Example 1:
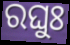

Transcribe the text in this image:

ରଘୁଃ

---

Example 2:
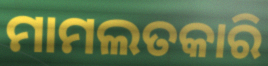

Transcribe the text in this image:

ମାମଲତକାରି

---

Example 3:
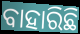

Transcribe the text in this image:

ବାହାରିଛି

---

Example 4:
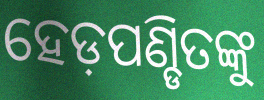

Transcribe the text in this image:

ହେଡ଼ପଣ୍ଡିତଙ୍କୁ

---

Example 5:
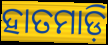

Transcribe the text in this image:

ହାତମାଡ଼ି